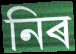
নিৰ